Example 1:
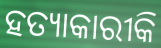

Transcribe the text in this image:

ହତ୍ୟାକାରୀକି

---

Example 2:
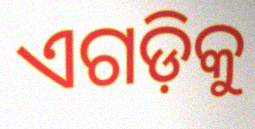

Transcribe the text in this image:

ଏଗଡ଼ିକୁ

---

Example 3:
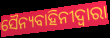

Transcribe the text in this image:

ସୈନ୍ୟବାହିନୀଦ୍ୱାରା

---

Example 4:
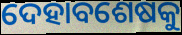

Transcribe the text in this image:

ଦେହାବଶେଷକୁ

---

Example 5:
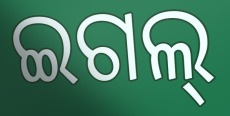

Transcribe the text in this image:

ଇଗଲ୍